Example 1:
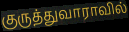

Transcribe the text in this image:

குருத்துவாராவில்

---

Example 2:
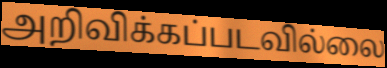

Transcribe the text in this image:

அறிவிக்கப்படவில்லை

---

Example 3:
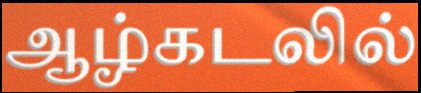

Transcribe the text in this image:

ஆழ்கடலில்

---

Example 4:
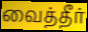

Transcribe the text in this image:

வைத்தீர்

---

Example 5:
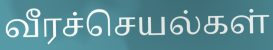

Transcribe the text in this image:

வீரச்செயல்கள்